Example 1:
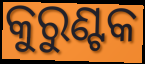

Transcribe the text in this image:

କୁରୁଣ୍ଟକ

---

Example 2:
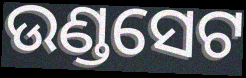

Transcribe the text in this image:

ଉଣ୍ଡସେଟ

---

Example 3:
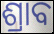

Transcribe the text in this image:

ଶ୍ରାବ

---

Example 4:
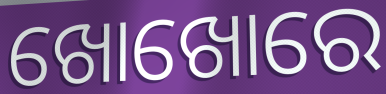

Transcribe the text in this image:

ଖୋଖୋରେ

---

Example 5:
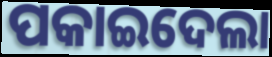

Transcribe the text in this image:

ପକାଇଦେଲା